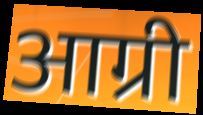
आग्री